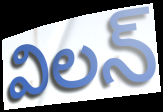
విలన్